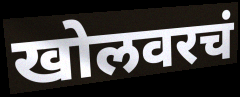
खोलवरचं